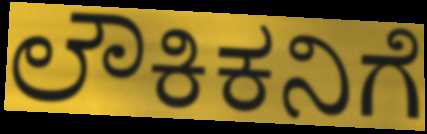
ಲೌಕಿಕನಿಗೆ